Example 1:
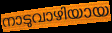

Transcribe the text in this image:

നാടുവാഴിയായ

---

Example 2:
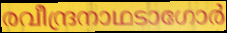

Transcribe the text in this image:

രവീന്ദ്രനാഥടാഗോർ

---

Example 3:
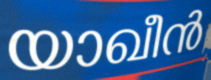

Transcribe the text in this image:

യാഖീൻ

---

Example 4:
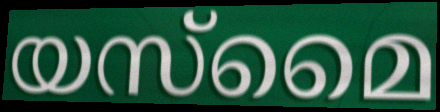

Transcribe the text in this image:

യസ്മൈ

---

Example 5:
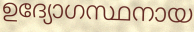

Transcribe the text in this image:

ഉദ്യോഗസ്ഥനായ